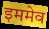
इममेव